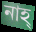
নাহ্